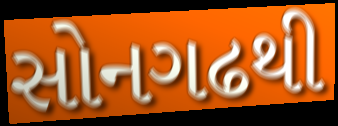
સોનગઢથી